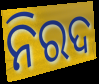
ନିରଦ